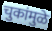
चुकांमुळे